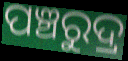
ପଞ୍ଚରୁଦ୍ର